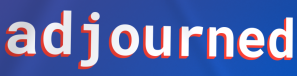
adjourned